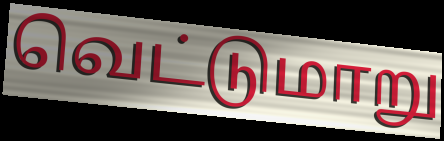
வெட்டுமாறு